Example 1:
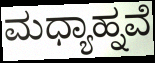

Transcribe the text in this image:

ಮಧ್ಯಾಹ್ನವೆ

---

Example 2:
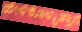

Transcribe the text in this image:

ಹೇಳಿಕೊಳ್ಳುತ್ತಾನೆ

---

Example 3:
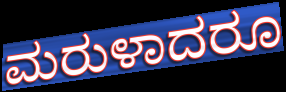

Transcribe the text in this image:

ಮರುಳಾದರೂ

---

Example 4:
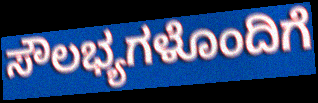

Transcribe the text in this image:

ಸೌಲಭ್ಯಗಳೊಂದಿಗೆ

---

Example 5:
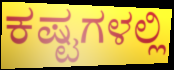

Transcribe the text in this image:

ಕಷ್ಟಗಳಲ್ಲಿ